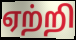
ஏற்றி